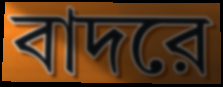
বাদরে